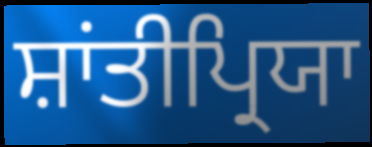
ਸ਼ਾਂਤੀਪ੍ਰਿਯਾ